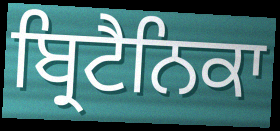
ਬ੍ਰਿਟੈਨਿਕਾ